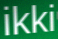
ikki